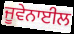
ਜੂਵੇਨਾਈਲ